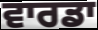
ਵਾਰਡਾ